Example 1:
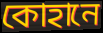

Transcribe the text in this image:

কোহানে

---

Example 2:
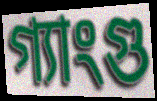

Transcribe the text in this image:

গ্যাংগু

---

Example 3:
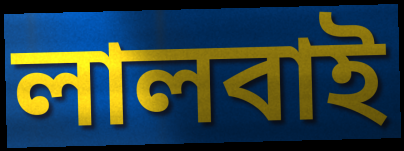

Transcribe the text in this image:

লালবাই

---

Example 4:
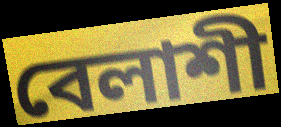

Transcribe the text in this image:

বেলাশী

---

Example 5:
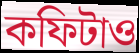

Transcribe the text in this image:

কফিটাও